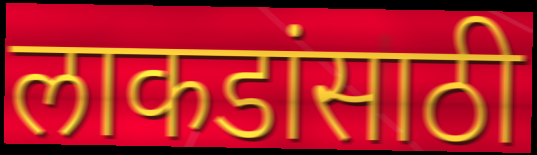
लाकडांसाठी